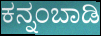
ಕನ್ನಂಬಾಡಿ